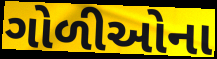
ગોળીઓના